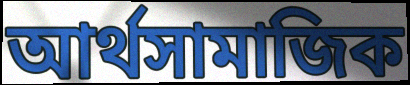
আর্থসামাজিক